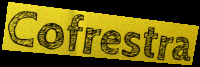
Cofrestra